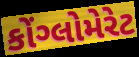
કોંગ્લોમેરેટ